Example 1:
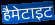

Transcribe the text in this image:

हैमेटाइट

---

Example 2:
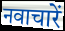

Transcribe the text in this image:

नवाचारें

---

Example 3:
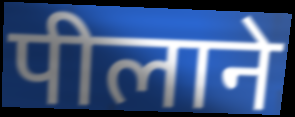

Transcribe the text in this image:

पीलाने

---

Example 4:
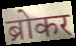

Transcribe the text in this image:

ब्रोकर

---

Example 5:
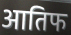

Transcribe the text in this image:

आतिफ